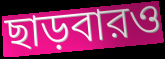
ছাড়বারও